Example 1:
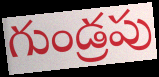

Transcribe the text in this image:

గుండ్రపు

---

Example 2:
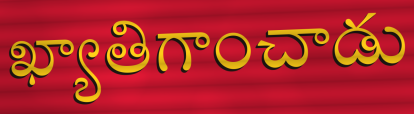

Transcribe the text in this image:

ఖ్యాతిగాంచాడు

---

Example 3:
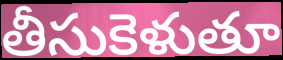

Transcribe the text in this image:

తీసుకెళుతూ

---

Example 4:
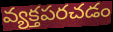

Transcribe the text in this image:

వ్యక్తపరచడం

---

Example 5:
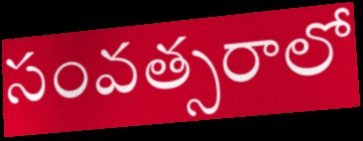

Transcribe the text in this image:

సంవత్సరాలో